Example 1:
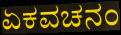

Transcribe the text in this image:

ಏಕವಚನಂ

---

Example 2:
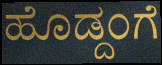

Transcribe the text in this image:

ಹೊಡ್ದಂಗೆ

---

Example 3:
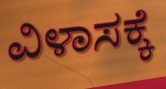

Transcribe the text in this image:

ವಿಳಾಸಕ್ಕೆ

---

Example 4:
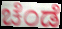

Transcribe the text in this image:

ಚೆಂಡೆ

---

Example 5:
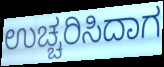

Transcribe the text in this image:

ಉಚ್ಚರಿಸಿದಾಗ